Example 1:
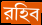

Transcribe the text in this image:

রহিব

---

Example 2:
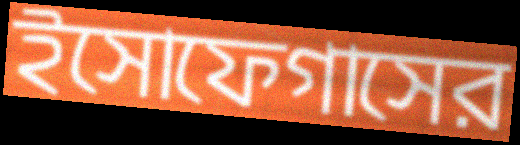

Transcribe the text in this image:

ইসোফেগাসের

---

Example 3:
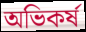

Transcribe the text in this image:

অভিকর্ষ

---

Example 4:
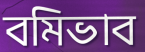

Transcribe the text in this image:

বমিভাব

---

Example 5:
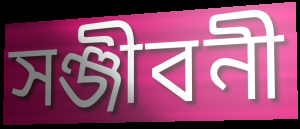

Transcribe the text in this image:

সঞ্জীবনী